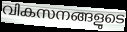
വികസനങ്ങളുടെ